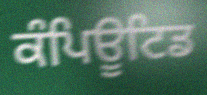
ਕੰਪਿਊਟਿਡ